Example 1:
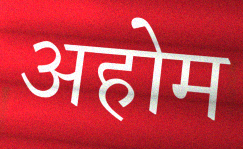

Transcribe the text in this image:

अहोम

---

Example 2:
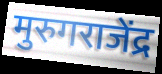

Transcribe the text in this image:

मुरुगराजेंद्र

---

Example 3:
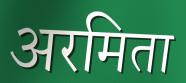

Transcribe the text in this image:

अरमिता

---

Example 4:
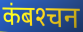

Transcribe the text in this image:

कंबश्चन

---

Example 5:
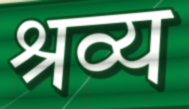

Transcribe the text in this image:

श्रव्य